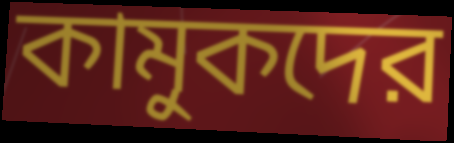
কামুকদের